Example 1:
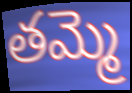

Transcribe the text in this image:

తమ్మె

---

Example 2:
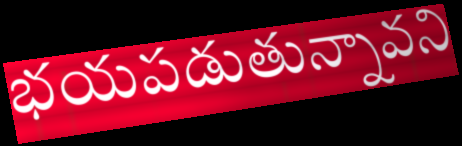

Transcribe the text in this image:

భయపడుతున్నావని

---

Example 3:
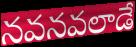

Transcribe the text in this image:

నవనవలాడే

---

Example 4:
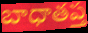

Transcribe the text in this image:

బాధాతప్త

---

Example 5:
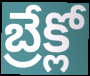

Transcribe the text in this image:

బ్రేక్లో